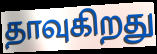
தாவுகிறது